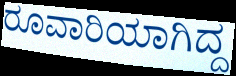
ರೂವಾರಿಯಾಗಿದ್ದ